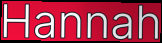
Hannah